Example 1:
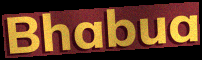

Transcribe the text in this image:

Bhabua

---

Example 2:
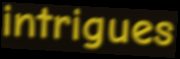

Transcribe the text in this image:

intrigues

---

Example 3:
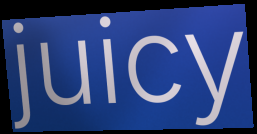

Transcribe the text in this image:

juicy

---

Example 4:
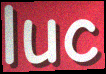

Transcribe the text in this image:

luc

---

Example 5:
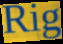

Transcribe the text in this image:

Rig